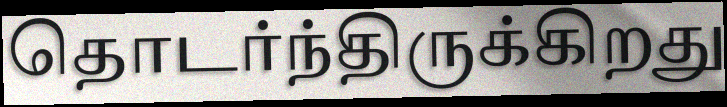
தொடர்ந்திருக்கிறது